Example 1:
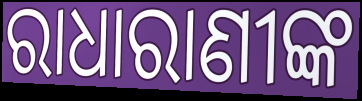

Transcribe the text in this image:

ରାଧାରାଣୀଙ୍କ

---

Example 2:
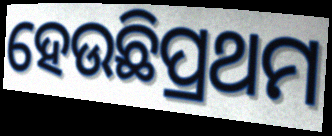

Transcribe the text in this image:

ହେଉଛିପ୍ରଥମ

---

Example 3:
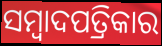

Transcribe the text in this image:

ସମ୍ବାଦପତ୍ରିକାର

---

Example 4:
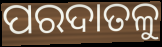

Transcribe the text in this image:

ପରଦାତଳୁ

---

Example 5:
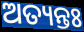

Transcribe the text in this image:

ଅତ୍ୟନ୍ତଃ